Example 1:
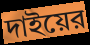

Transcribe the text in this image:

দাইয়ের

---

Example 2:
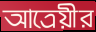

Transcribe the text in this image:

আত্রেয়ীর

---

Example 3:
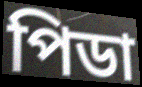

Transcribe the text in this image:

পিডা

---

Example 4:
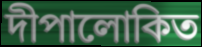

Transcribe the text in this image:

দীপালোকিত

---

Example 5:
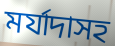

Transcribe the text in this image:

মর্যাদাসহ